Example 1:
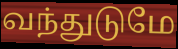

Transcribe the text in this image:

வந்துடுமே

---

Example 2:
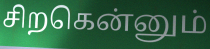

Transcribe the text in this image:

சிறகென்னும்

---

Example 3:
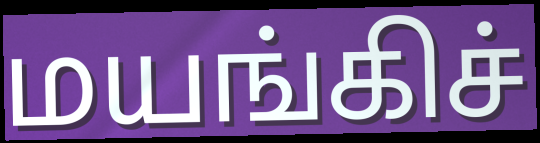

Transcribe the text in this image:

மயங்கிச்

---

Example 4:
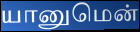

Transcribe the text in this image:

யானுமென்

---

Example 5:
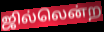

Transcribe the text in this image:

ஜில்லென்ற